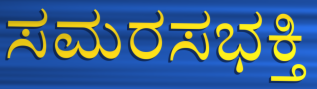
ಸಮರಸಭಕ್ತಿ